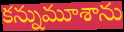
కన్నుమూశాను